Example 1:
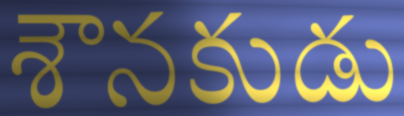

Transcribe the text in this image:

శౌనకుడు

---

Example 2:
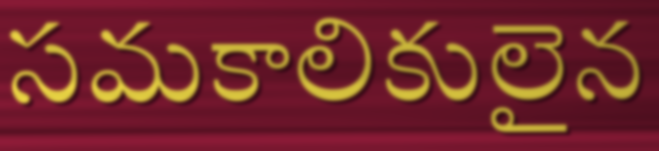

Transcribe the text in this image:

సమకాలికులైన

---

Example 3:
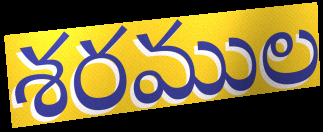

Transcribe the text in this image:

శరముల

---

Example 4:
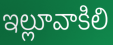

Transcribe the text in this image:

ఇల్లూవాకిలి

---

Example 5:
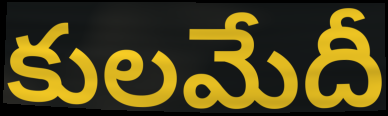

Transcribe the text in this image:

కులమేదీ